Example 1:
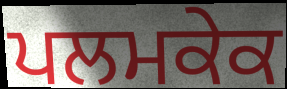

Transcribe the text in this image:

ਪਲਮਕੇਕ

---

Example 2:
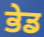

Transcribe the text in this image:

ਭੇਡ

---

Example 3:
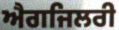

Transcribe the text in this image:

ਐਗਜਿਲਰੀ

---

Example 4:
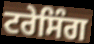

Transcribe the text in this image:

ਟਰੇਸਿੰਗ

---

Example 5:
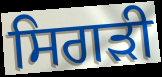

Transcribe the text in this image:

ਸਿਗੜੀ